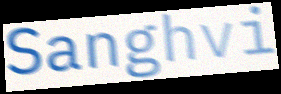
Sanghvi